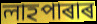
লাহপাৰাৰ